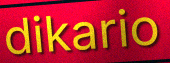
dikario